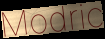
Modric